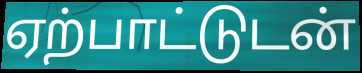
ஏற்பாட்டுடன்